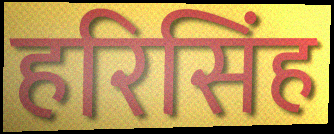
हरिसिंह